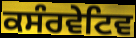
ਕਸੰਰਵੇਟਿਵ